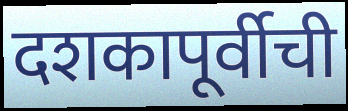
दशकापूर्वीची